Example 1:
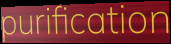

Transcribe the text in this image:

purification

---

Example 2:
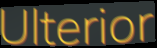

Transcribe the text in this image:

Ulterior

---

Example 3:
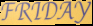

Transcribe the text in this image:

FRIDAY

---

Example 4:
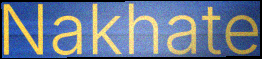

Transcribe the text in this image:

Nakhate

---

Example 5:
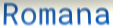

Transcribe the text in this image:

Romana